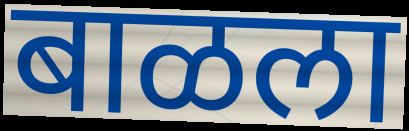
बाळला